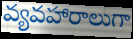
వ్యవహారాలుగా